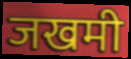
जखमी